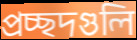
প্রচ্ছদগুলি